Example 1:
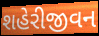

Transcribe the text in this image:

શહેરીજીવન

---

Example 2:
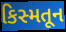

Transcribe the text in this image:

કિસ્મતૂન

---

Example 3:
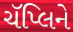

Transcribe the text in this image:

ચૅપ્લિને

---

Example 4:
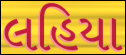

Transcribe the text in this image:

લહિયા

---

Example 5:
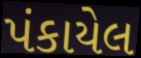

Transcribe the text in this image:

પંકાયેલ